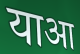
याआ